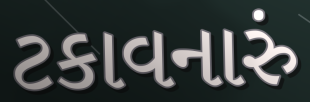
ટકાવનારું